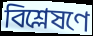
বিশ্লেষণে